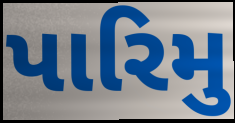
પારિમુ